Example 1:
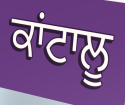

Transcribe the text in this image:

ਕਾਂਟਾਲੂ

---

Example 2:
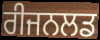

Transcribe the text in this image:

ਰੀਜਨਲਡ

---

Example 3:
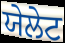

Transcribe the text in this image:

ਯੇਲੇਟ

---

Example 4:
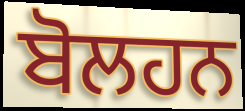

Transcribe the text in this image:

ਬੋਲਹਨ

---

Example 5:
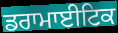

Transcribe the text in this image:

ਡਰਾਮਾਈਟਿਕ